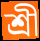
শ্ৰী